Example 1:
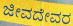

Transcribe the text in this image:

ಜೀವದೇವರ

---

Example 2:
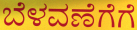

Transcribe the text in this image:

ಬೆಳವಣೆಗೆಗೆ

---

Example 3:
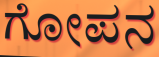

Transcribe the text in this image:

ಗೋಪನ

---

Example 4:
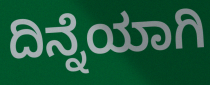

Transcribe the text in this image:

ದಿನ್ನೆಯಾಗಿ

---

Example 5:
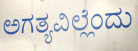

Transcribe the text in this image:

ಅಗತ್ಯವಿಲ್ಲೆಂದು